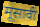
मूसावी